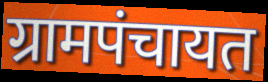
ग्रामपंचायत